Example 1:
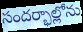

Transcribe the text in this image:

సందర్భాల్లోను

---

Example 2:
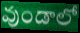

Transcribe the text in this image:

వుండాలో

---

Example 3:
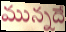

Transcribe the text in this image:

మున్నదే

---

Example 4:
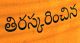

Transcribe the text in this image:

తిరస్కరించిన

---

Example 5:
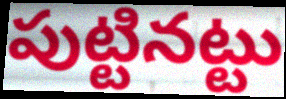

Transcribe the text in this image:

పుట్టినట్టు